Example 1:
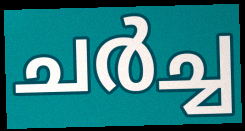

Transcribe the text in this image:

ചർച്ച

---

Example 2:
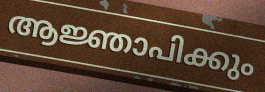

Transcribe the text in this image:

ആജ്ഞാപിക്കും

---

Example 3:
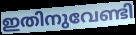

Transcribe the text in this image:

ഇതിനുവേണ്ടി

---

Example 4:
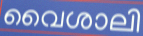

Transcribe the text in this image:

വൈശാലി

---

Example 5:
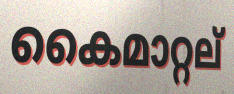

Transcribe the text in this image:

കൈമാറ്റല്